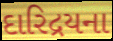
દારિદ્રયના